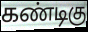
கண்டிகு